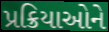
પ્રક્રિયાઓને